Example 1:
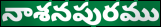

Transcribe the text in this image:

నాశనపురము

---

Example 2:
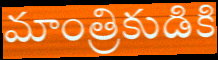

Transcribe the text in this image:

మాంత్రికుడికి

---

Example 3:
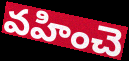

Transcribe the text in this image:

వహించె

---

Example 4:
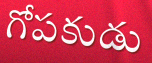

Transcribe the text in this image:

గోపకుడు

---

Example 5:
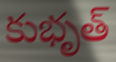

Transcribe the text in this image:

కుభృత్